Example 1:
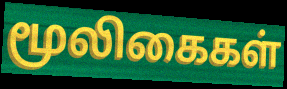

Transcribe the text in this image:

மூலிகைகள்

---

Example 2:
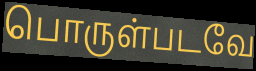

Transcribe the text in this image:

பொருள்படவே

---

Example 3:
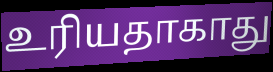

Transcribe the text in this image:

உரியதாகாது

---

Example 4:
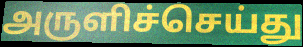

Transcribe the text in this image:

அருளிச்செய்து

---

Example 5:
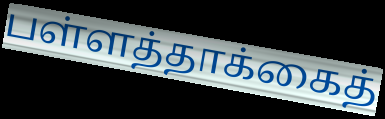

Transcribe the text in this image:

பள்ளத்தாக்கைத்